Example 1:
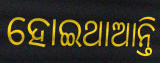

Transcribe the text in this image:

ହୋଇଥାଆନ୍ତି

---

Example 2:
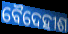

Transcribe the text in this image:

ବୈଦେହୀଶ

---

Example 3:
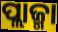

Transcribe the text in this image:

ପ୍ଲାଜ୍ମା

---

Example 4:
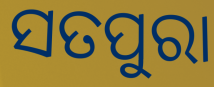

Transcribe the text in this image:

ସତପୁରା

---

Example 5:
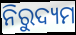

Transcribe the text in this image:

ନିରୁଦ୍ୟମ